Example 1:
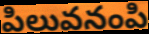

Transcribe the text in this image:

పిలువనంపి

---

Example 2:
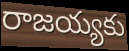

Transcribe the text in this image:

రాజయ్యకు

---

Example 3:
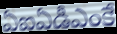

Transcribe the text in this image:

ఏఐఏడీఎంకే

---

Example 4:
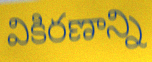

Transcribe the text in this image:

వికిరణాన్ని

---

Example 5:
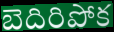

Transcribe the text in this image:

బెదిరిపోక